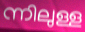
ന്നിലുള്ള